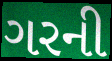
ગરની